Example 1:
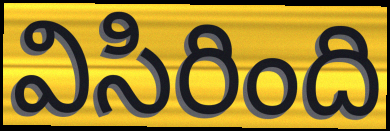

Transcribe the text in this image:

విసిరింది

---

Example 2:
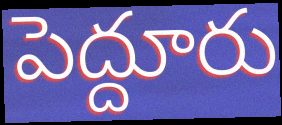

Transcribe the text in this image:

పెద్దూరు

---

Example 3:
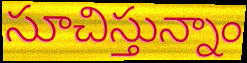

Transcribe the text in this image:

సూచిస్తున్నాం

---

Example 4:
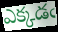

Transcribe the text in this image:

ఎక్కడఁ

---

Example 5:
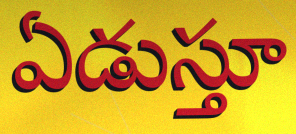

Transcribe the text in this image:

ఏడుస్తూ